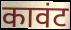
कावंट